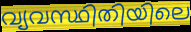
വ്യവസ്ഥിതിയിലെ